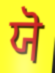
ਯੋ